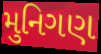
મુનિગણ